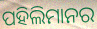
ପହିଲିମାନର